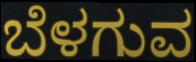
ಬೆಳಗುವ